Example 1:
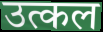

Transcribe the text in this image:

उत्कल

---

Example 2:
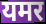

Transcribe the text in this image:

यमर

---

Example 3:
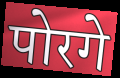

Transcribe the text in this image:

पोरगे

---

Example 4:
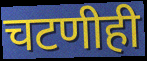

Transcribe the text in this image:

चटणीही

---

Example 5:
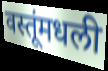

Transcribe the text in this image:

वस्तूंमधली